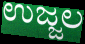
ಉಜ್ಜಲ